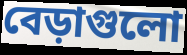
বেড়াগুলো